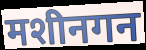
मशीनगन